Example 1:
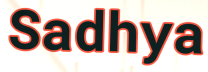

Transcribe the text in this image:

Sadhya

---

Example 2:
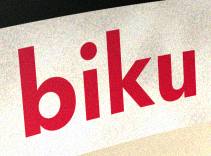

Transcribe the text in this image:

biku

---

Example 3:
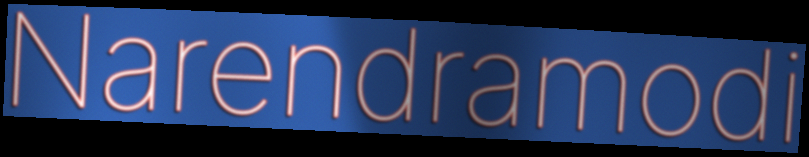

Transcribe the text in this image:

Narendramodi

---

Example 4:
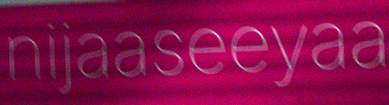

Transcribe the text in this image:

nijaaseeyaa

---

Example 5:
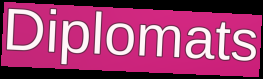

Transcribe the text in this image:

Diplomats